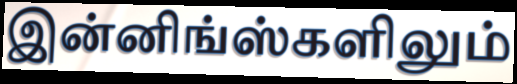
இன்னிங்ஸ்களிலும்